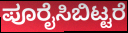
ಪೂರೈಸಿಬಿಟ್ಟರೆ